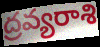
ద్రవ్యరాశి